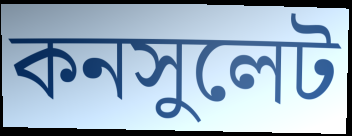
কনসুলেট